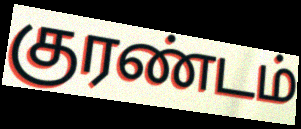
குரண்டம்